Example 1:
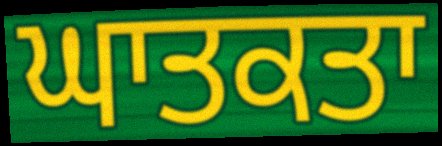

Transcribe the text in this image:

ਘਾਤਕਤਾ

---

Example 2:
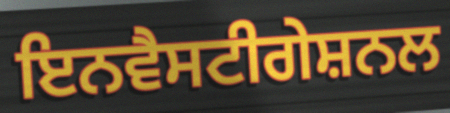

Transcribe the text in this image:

ਇਨਵੈਸਟੀਗੇਸ਼ਨਲ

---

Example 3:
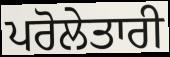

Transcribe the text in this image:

ਪਰੋਲੇਤਾਰੀ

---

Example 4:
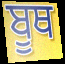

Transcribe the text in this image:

ਬੂਥ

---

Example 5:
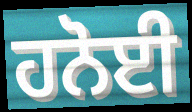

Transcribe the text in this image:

ਹਨੋਈ